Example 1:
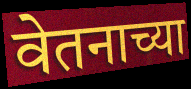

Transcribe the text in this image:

वेतनाच्या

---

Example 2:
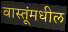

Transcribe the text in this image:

वास्तूंमधील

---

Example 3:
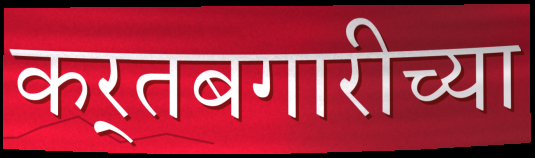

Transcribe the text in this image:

कर्तबगारीच्या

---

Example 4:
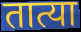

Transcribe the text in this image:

तात्या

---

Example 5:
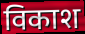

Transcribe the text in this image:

विकाश